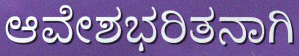
ಆವೇಶಭರಿತನಾಗಿ